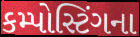
કમ્પોસ્ટિંગના